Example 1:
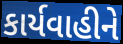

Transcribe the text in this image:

કાર્યવાહીને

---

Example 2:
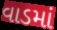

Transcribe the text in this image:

વાડમાં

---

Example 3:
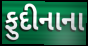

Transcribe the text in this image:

ફુદીનાના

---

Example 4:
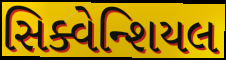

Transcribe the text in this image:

સિક્વેન્શિયલ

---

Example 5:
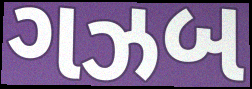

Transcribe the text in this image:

ગઝબ